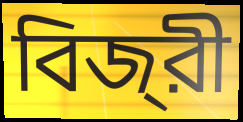
বিজ্‌রী